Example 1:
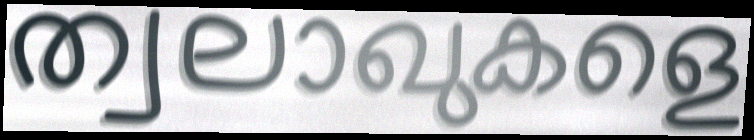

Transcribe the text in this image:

ത്വലാഖുകളെ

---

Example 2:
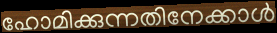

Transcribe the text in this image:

ഹോമിക്കുന്നതിനേക്കാൾ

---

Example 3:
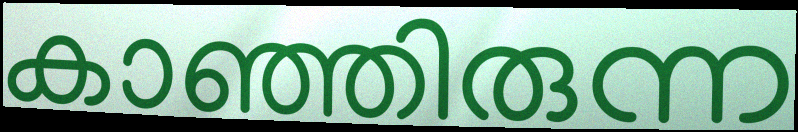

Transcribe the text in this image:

കാഞ്ഞിരുന്ന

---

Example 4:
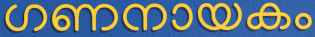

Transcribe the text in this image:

ഗണനായകം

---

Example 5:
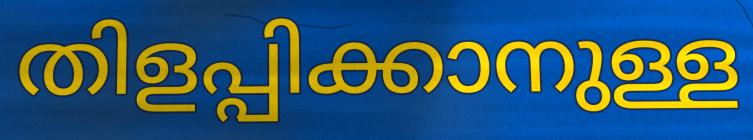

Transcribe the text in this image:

തിളപ്പിക്കാനുള്ള